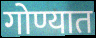
गोण्यात